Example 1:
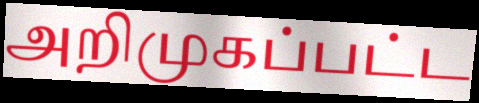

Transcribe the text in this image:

அறிமுகப்பட்ட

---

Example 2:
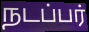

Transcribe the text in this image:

நடப்பர்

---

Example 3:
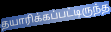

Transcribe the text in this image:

தயாரிக்கப்பட்டிருந்த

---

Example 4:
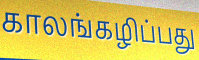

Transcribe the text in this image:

காலங்கழிப்பது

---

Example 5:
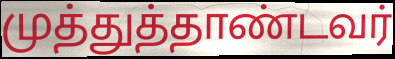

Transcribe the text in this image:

முத்துத்தாண்டவர்